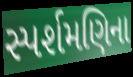
સ્પર્શમણિના